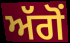
ਅੱਗੋਂ